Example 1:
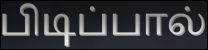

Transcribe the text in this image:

பிடிப்பால்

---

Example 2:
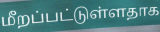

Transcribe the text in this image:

மீறப்பட்டுள்ளதாக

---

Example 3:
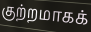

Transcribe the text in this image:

குற்றமாகக்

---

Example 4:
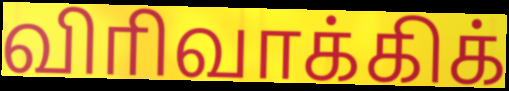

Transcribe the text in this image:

விரிவாக்கிக்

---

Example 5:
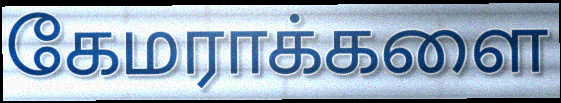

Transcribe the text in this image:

கேமராக்களை